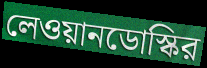
লেওয়ানডোস্কির